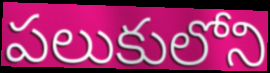
పలుకులోని